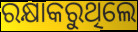
ରକ୍ଷାକରୁଥିଲେ